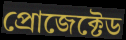
প্রোজেক্টেড